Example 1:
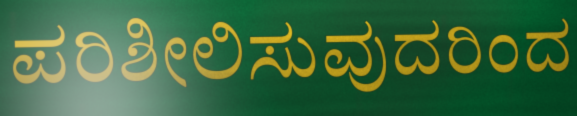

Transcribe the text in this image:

ಪರಿಶೀಲಿಸುವುದರಿಂದ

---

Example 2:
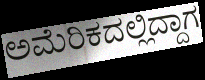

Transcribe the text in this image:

ಅಮೆರಿಕದಲ್ಲಿದ್ದಾಗ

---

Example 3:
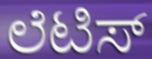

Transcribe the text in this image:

ಲೆಟಿಸ್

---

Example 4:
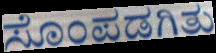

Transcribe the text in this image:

ಸೊಂಪಡಗಿತು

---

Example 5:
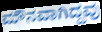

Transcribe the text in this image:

ಮೌನವಾಗಿದ್ದವು